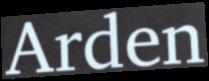
Arden